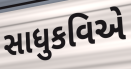
સાધુકવિએ